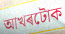
আখৰটোক